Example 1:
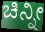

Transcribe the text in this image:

ಚಿನ್ನೀ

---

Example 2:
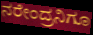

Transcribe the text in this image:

ನರೇಂದ್ರನಿಗೂ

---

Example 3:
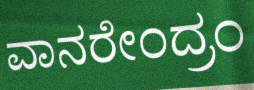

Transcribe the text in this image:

ವಾನರೇಂದ್ರಂ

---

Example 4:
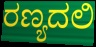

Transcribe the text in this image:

ರಣ್ಯದಲಿ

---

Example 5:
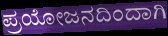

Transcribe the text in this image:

ಪ್ರಯೋಜನದಿಂದಾಗಿ